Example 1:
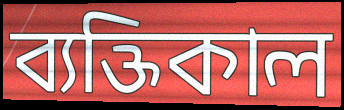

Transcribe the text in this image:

ব্যক্তিকাল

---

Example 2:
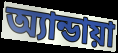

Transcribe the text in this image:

অ্যান্ডায়া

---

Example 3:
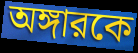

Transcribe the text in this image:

অঙ্গারকে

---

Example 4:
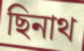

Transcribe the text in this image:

ছিনাথ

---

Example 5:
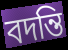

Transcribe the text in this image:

বদন্তি